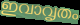
ഇവാവൃതം